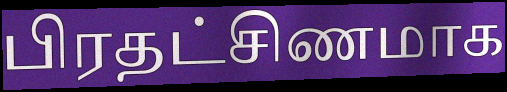
பிரதட்சிணமாக